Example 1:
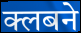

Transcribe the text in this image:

क्‍लबने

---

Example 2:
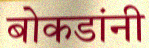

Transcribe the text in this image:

बोकडांनी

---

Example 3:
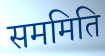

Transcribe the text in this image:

सममिति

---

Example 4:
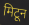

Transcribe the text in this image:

मिटून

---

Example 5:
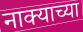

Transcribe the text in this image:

नाक्याच्या